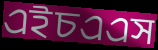
এইচএএস